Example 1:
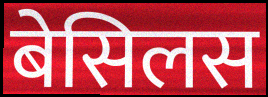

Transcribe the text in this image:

बेसिलस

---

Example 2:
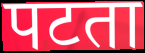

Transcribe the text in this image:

पटता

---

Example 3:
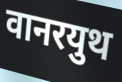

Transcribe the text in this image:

वानरयुथ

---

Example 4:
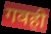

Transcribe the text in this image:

गवही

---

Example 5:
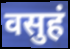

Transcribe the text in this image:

वसुहं